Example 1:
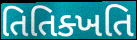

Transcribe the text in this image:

તિતિક્ખતિ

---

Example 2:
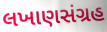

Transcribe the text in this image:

લખાણસંગ્રહ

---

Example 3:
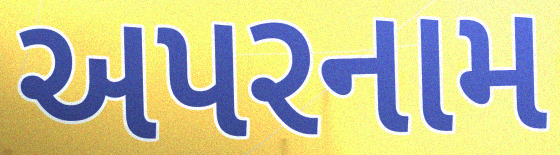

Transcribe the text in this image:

અપરનામ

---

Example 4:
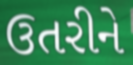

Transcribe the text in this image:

ઉતરીને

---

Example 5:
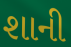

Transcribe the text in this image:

શાની